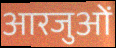
आरजुओं